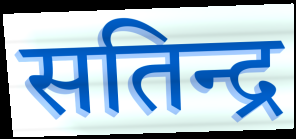
सतिन्द्र